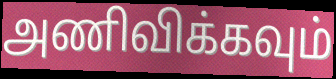
அணிவிக்கவும்